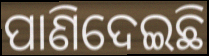
ପାଣିଦେଇଛି